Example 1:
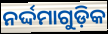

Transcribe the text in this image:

ନର୍ଦ୍ଦମାଗୁଡ଼ିକ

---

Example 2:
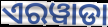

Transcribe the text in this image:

ଏରୱାଡା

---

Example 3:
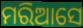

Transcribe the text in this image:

ମରିଆସେ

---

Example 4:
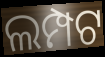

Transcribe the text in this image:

ଲମ୍ପଟ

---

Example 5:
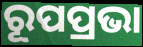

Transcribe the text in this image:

ରୂପପ୍ରଭା